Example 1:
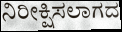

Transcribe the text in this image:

ನಿರೀಕ್ಷಿಸಲಾಗದ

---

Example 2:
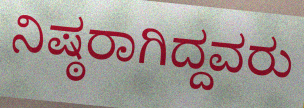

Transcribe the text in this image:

ನಿಷ್ಠರಾಗಿದ್ದವರು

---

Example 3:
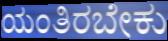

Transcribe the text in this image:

ಯಂತಿರಬೇಕು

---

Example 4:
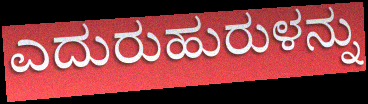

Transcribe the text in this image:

ಎದುರುಹುರುಳನ್ನು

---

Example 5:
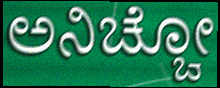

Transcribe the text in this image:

ಅನಿಚ್ಚೋ